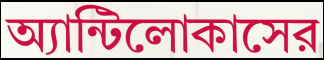
অ্যান্টিলোকাসের